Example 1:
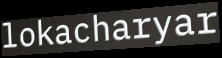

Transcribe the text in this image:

lokacharyar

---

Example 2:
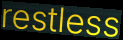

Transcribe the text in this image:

restless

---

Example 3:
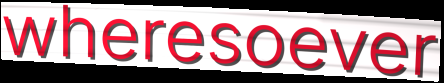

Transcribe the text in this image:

wheresoever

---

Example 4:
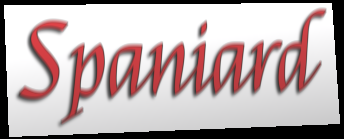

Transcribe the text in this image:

Spaniard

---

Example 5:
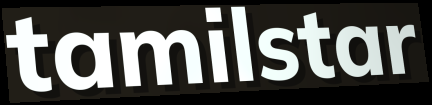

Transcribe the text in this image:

tamilstar